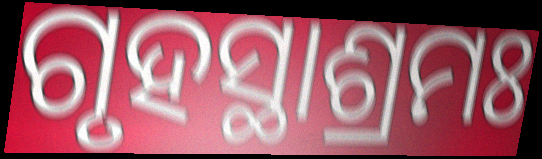
ଗୃହସ୍ଥାଶ୍ରମଃ